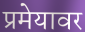
प्रमेयावर